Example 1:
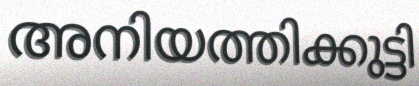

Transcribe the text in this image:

അനിയത്തിക്കുട്ടി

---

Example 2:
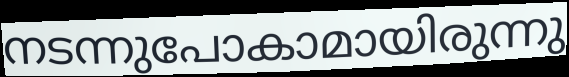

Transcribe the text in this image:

നടന്നുപോകാമായിരുന്നു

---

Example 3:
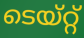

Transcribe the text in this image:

ടെയ്റ്റ്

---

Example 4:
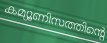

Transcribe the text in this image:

കമ്യൂണിസത്തിന്റെ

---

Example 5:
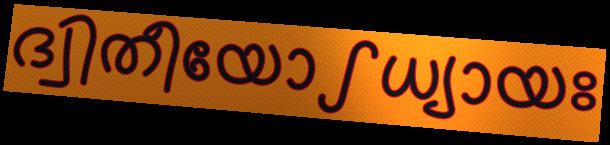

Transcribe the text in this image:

ദ്വിതീയോഽധ്യായഃ